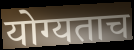
योग्यताच